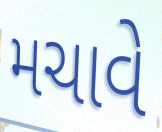
મચાવે